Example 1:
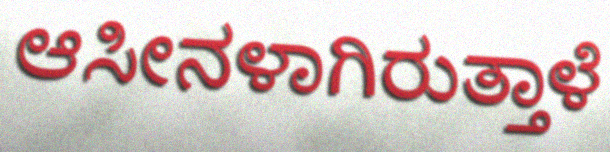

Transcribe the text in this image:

ಆಸೀನಳಾಗಿರುತ್ತಾಳೆ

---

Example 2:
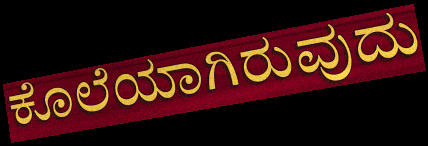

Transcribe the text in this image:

ಕೊಲೆಯಾಗಿರುವುದು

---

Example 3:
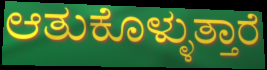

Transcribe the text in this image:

ಆತುಕೊಳ್ಳುತ್ತಾರೆ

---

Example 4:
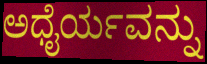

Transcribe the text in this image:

ಅಧೈರ್ಯವನ್ನು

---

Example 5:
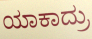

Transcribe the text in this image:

ಯಾಕಾದ್ರು